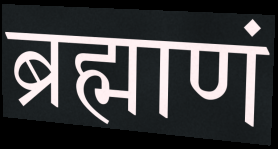
ब्रह्माणं